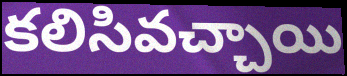
కలిసివచ్చాయి